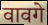
वावगे